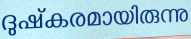
ദുഷ്‌കരമായിരുന്നു